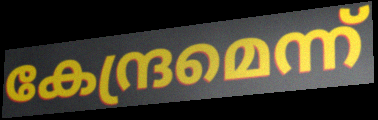
കേന്ദ്രമെന്ന്